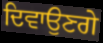
ਦਿਵਾਉਣਗੇ